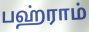
பஹ்ராம்